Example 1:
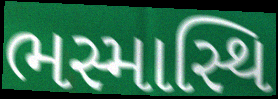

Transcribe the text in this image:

ભસ્માસ્થિ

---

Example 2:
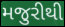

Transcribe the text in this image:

મજુરીથી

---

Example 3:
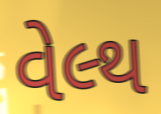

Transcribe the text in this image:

વેલ્થ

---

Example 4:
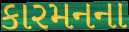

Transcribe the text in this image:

કારમનના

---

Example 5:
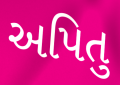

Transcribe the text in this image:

અપિતુ